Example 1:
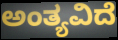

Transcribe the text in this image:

ಅಂತ್ಯವಿದೆ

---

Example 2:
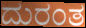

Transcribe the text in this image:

ದುರಂತ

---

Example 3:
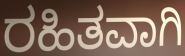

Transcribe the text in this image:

ರಹಿತವಾಗಿ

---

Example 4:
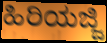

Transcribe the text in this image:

ಹಿರಿಯಜ್ಜಿ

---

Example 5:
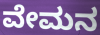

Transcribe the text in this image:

ವೇಮನ